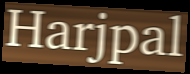
Harjpal